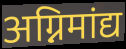
अग्निमांद्य